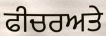
ਫੀਚਰਅਤੇ